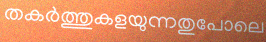
തകർത്തുകളയുന്നതുപോലെ